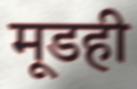
मूडही